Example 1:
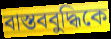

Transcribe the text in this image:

বাস্তববুদ্ধিকে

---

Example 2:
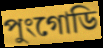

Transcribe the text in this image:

পুংগোডি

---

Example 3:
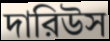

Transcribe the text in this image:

দারিউস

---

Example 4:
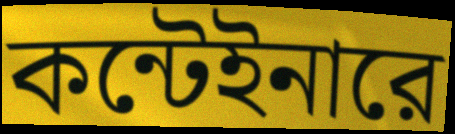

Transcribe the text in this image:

কন্টেইনারে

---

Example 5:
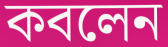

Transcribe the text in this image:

কবলেন